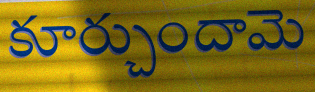
కూర్చుందామె